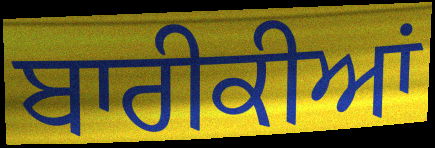
ਬਾਰੀਕੀਆਂ